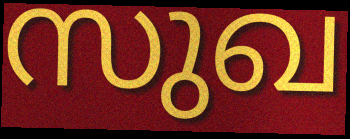
സുഖ